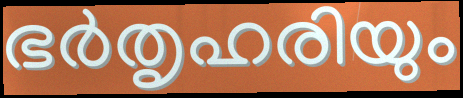
ഭർതൃഹരിയും